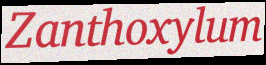
Zanthoxylum